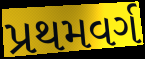
પ્રથમવર્ગ